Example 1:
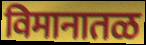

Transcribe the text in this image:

विमानातळ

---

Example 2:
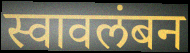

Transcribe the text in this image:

स्वावलंबन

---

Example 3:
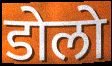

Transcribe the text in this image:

डोलो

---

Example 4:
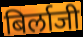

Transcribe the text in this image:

बिर्लाजी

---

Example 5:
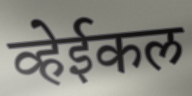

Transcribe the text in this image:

व्हेईकल